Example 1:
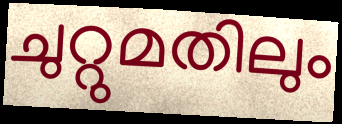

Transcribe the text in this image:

ചുറ്റുമതിലും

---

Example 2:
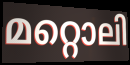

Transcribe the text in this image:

മറ്റൊലി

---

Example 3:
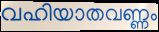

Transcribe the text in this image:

വഹിയാതവണ്ണം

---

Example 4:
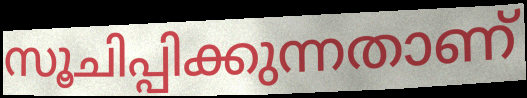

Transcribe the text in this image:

സൂചിപ്പിക്കുന്നതാണ്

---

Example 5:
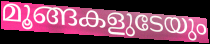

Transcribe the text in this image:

മൂങ്ങകളുടേയും